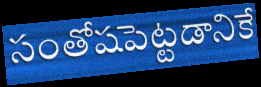
సంతోషపెట్టడానికే